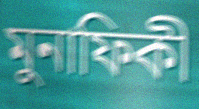
মুনাফিকী